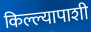
किल्ल्यापाशी